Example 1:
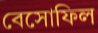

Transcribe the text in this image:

বেসোফিল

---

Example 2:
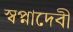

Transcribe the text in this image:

স্বপ্নাদেবী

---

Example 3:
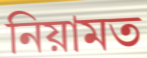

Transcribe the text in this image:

নিয়ামত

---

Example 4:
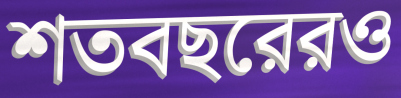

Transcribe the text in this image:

শতবছরেরও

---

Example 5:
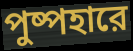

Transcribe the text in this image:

পুষ্পহারে